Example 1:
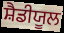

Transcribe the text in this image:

ਸ਼ੈਡੀਯੂਲ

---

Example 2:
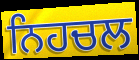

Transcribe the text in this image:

ਨਿਹਚਲ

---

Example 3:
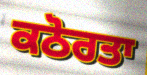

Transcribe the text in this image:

ਕਠੋਰਤਾ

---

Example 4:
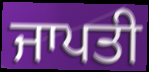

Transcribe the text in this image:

ਜਾਪਤੀ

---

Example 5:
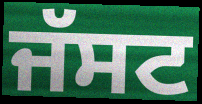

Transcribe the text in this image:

ਜੱਸਟ